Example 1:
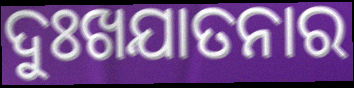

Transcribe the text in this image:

ଦୁଃଖଯାତନାର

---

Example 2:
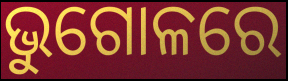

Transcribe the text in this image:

ଭୁଗୋଳରେ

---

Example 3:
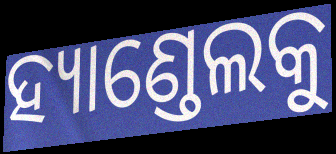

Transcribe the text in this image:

ହ୍ୟାଣ୍ଡେଲକୁ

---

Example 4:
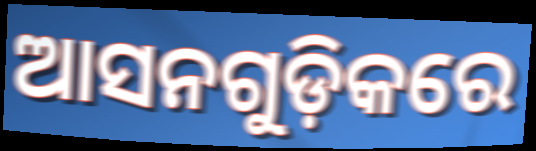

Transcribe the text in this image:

ଆସନଗୁଡ଼ିକରେ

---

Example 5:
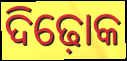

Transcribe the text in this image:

ଦିଢ଼ୋକ